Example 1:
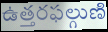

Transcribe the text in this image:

ఉత్తరఫల్గుణి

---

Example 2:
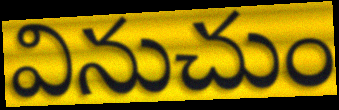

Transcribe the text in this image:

వినుచుం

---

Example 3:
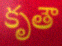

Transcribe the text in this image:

కృతౌ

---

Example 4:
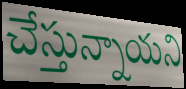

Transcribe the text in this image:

చేస్తున్నాయని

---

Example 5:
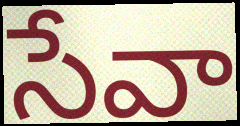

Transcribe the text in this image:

సేవా